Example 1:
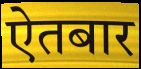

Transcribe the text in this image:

ऐतबार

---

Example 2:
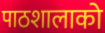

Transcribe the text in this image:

पाठशालाको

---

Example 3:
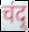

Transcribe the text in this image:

चंद्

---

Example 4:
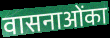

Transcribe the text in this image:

वासनाओंका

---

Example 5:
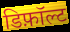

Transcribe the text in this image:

डिफ़ॉल्ट